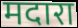
मदारा